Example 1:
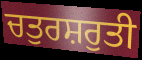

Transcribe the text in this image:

ਚਤੁਰਸ਼ਰੁਤੀ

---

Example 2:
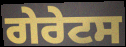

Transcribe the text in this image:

ਗੇਰੇਟਸ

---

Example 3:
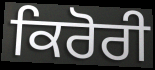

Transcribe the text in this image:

ਕਿਰੋਰੀ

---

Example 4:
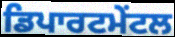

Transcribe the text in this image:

ਡਿਪਾਰਟਮੇਂਟਲ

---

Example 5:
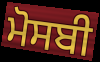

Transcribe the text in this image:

ਮੋਸਬੀ